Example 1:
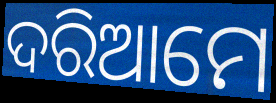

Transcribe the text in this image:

ଦରିଆମେ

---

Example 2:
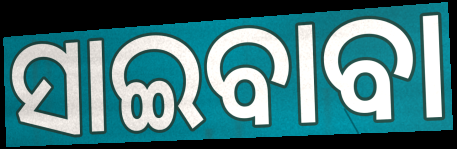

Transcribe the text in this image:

ସାଇବାବା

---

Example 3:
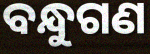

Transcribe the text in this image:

ବନ୍ଧୁଗଣ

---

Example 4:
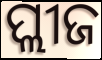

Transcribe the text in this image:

ପ୍ଲୀଜ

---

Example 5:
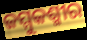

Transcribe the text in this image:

ଜମ୍ମୁକଶ୍ମୀର